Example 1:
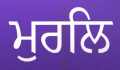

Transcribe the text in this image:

ਮੁਰਲਿ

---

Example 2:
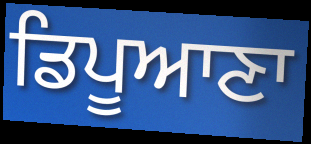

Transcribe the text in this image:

ਡਿਪੂਆਣਾ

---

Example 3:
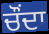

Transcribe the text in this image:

ਚੌਂਦਾ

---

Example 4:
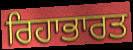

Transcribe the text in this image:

ਰਿਹਾਭਾਰਤ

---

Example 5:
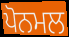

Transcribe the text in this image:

ਪੋਨਮਲ